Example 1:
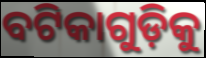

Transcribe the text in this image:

ବଟିକାଗୁଡ଼ିକୁ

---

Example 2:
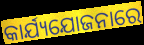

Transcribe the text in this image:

କାର୍ଯ୍ୟଯୋଜନାରେ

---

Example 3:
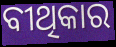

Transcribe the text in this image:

ବୀଥିକାର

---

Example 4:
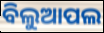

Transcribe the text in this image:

ବିଲୁଆପଲ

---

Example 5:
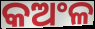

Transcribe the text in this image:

କଅଂଳ